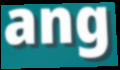
ang